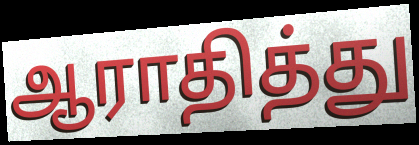
ஆராதித்து